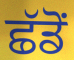
ਛੱਡੋਂ